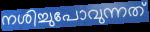
നശിച്ചുപോവുന്നത്